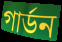
গার্ডন